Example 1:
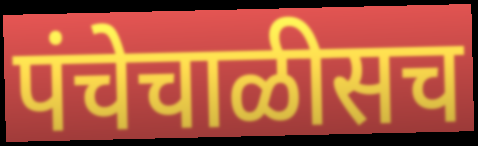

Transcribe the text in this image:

पंचेचाळीसच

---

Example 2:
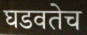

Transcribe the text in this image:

घडवतेच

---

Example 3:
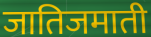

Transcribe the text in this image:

जातिजमाती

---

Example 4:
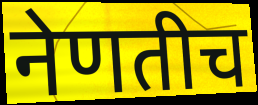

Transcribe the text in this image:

नेणतीच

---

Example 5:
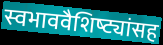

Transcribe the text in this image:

स्वभाववैशिष्ट्यांसह